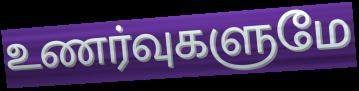
உணர்வுகளுமே